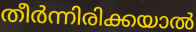
തീർന്നിരിക്കയാൽ